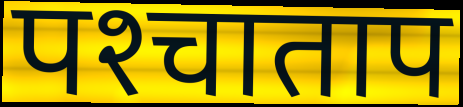
पश्चाताप